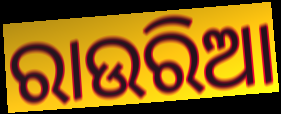
ରାଉରିଆ